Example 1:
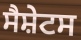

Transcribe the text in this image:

ਸੈਸ਼ੇਟਸ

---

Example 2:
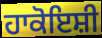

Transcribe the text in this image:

ਹਾਕੋਇਸ਼ੀ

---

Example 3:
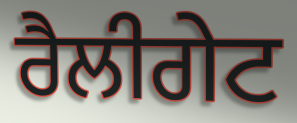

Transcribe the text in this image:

ਰੈਲੀਗੇਟ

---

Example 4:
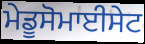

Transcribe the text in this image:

ਮੇਡੂਸੋਮਾਈਸੇਟ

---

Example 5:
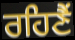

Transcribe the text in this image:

ਰਹਿਣੈਂ